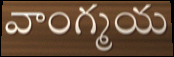
వాంగ్మయ